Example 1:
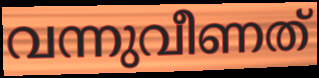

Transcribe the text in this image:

വന്നുവീണത്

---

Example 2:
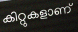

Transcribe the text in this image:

കിറ്റുകളാണ്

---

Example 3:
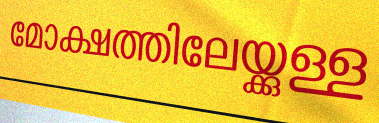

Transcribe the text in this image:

മോക്ഷത്തിലേയ്ക്കുള്ള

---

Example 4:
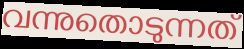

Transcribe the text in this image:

വന്നുതൊടുന്നത്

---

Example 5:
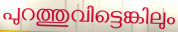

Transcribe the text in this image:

പുറത്തുവിട്ടെങ്കിലും